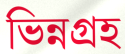
ভিন্নগ্রহ